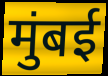
मुंबई